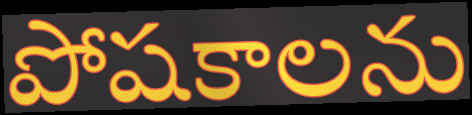
పోషకాలను